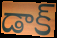
డాక్